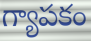
గ్యాపకం